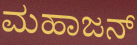
ಮಹಾಜನ್